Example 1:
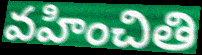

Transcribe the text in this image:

వహించితి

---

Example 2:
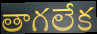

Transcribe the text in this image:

తాగలేక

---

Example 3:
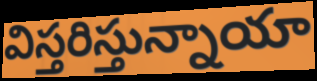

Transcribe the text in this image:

విస్తరిస్తున్నాయా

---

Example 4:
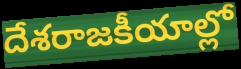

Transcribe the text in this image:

దేశరాజకీయాల్లో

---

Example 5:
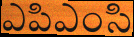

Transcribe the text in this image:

ఎపిఎంసి